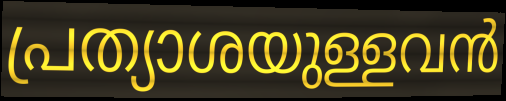
പ്രത്യാശയുള്ളവൻ